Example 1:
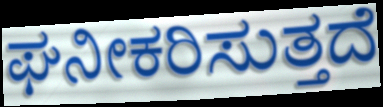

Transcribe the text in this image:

ಘನೀಕರಿಸುತ್ತದೆ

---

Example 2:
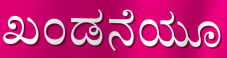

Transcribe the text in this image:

ಖಂಡನೆಯೂ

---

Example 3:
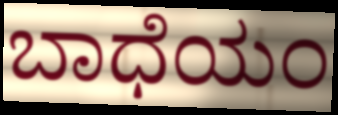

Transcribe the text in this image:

ಬಾಧೆಯಂ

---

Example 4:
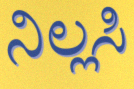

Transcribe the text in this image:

ನಿಲ್ಲಸಿ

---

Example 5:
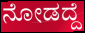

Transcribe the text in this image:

ನೋಡದ್ದೆ